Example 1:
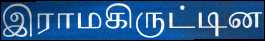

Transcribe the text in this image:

இராமகிருட்டின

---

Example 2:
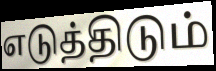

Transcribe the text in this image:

எடுத்திடும்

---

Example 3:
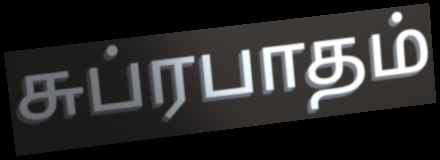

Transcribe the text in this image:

சுப்ரபாதம்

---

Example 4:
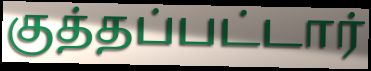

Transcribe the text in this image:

குத்தப்பட்டார்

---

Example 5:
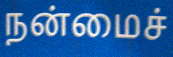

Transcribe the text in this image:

நன்மைச்